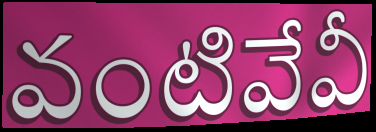
వంటివేవీ